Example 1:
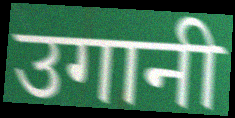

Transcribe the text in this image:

उगानी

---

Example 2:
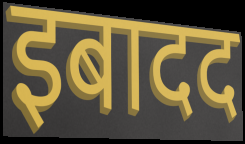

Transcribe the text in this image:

इबादद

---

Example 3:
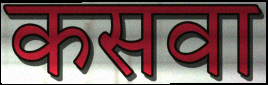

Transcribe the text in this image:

कसवा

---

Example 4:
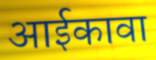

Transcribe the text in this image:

आईकावा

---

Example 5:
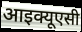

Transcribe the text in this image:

आइक्यूएसी